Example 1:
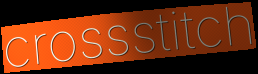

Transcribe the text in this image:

crossstitch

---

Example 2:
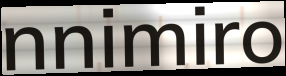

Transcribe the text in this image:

nnimiro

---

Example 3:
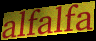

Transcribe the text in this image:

alfalfa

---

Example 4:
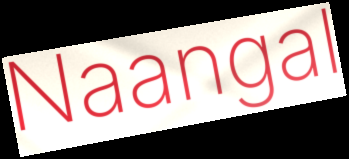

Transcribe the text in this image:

Naangal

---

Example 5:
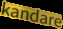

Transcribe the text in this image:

kandare